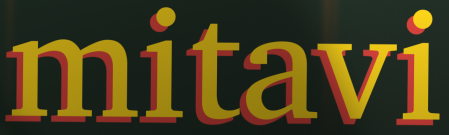
mitavi